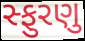
સ્ફુરણુ